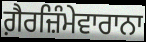
ਗ਼ੈਰਜ਼ਿੰਮੇਵਾਰਾਨਾ